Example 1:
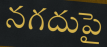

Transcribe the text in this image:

నగదుపై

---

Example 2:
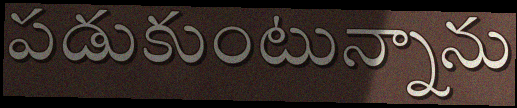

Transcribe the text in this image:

పడుకుంటున్నాను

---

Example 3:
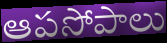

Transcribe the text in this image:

ఆపసోపాలు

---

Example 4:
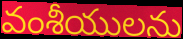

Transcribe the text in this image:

వంశీయులను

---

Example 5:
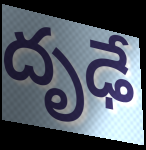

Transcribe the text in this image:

దృఢే